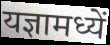
यज्ञामध्यें